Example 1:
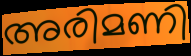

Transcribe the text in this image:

അരിമണി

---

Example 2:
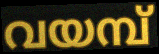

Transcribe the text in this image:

വയമ്പ്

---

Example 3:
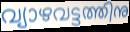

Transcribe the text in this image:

വ്യാഴവട്ടത്തിനു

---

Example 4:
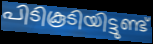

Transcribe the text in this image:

പിടികൂടിയിട്ടുണ്ട്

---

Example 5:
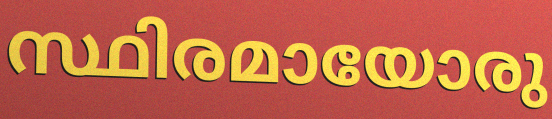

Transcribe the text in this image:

സ്ഥിരമായോരു